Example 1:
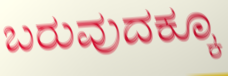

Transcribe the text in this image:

ಬರುವುದಕ್ಕೂ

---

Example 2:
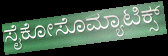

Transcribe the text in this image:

ಸೈಕೋಸೊಮ್ಯಾಟಿಕ್ಸ್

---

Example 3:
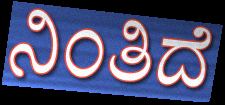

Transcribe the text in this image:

ನಿಂತಿದೆ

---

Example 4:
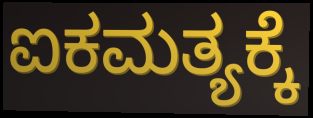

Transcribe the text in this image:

ಐಕಮತ್ಯಕ್ಕೆ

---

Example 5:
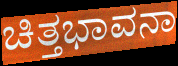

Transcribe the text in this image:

ಚಿತ್ತಭಾವನಾ